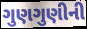
ગુણગુણીની